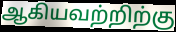
ஆகியவற்றிற்கு